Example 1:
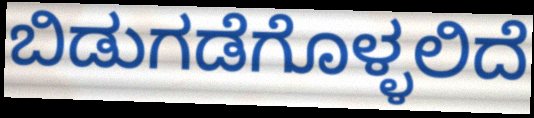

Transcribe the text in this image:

ಬಿಡುಗಡೆಗೊಳ್ಳಲಿದೆ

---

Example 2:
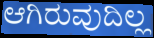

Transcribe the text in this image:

ಆಗಿರುವುದಿಲ್ಲ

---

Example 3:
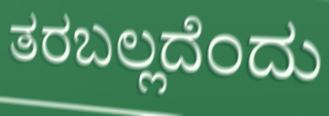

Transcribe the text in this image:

ತರಬಲ್ಲದೆಂದು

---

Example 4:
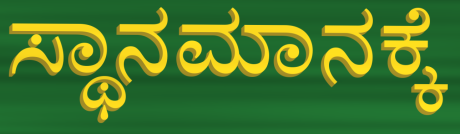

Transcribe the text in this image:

ಸ್ಥಾನಮಾನಕ್ಕೆ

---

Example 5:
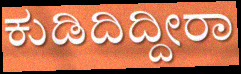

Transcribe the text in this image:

ಕುಡಿದಿದ್ದೀರಾ